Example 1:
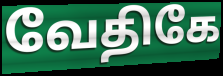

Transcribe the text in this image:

வேதிகே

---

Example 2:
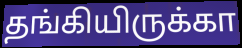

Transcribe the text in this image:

தங்கியிருக்கா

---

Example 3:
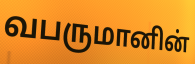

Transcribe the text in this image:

வபருமானின்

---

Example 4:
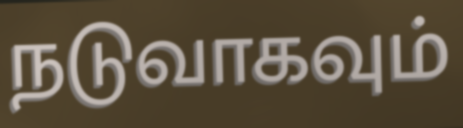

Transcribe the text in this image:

நடுவாகவும்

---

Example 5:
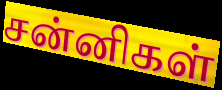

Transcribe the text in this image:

சன்னிகள்